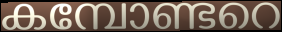
കമ്പോണ്ടറെ